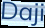
Daji